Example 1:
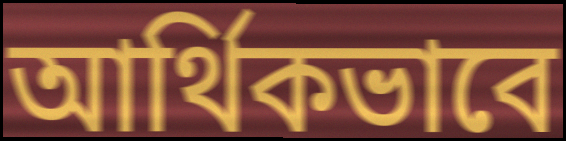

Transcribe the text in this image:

আৰ্থিকভাবে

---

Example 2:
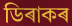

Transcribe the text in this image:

ডিৰাকৰ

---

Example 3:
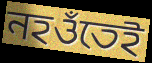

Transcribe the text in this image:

নহওঁতেই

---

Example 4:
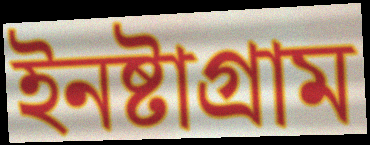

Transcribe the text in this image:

ইনষ্টাগ্ৰাম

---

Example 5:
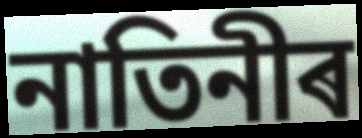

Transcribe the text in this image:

নাতিনীৰ